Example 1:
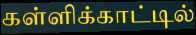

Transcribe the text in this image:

கள்ளிக்காட்டில்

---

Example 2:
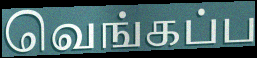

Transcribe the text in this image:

வெங்கப்ப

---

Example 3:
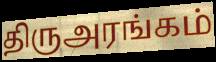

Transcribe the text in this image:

திருஅரங்கம்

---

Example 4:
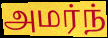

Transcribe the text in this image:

அமர்ந்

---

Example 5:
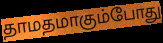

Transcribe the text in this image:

தாமதமாகும்போது